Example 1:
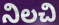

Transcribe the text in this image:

నిలచి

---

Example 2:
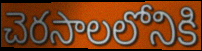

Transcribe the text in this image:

చెరసాలలోనికి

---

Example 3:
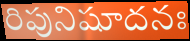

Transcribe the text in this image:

రిపునిషూదనః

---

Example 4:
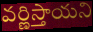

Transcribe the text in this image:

వర్ణిస్తాయని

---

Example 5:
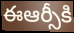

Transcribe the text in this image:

ఈఆర్సీకి